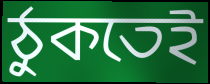
ঠুকতেই